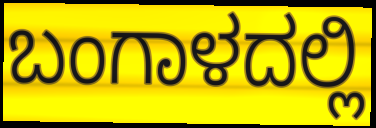
ಬಂಗಾಳದಲ್ಲಿ